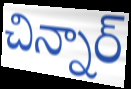
చిన్నార్